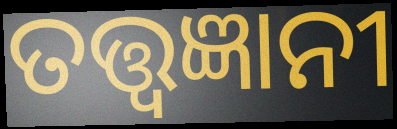
ତତ୍ତ୍ଵଜ୍ଞାନୀ